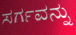
ಸರ್ಗವನ್ನು